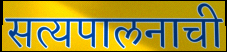
सत्यपालनाची